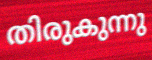
തിരുകുന്നു